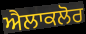
ਐਲਾਕਲੋਰ